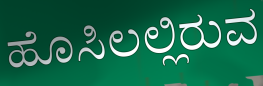
ಹೊಸಿಲಲ್ಲಿರುವ